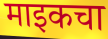
माइकचा